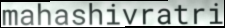
mahashivratri